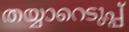
തയ്യാറെടുപ്പ്